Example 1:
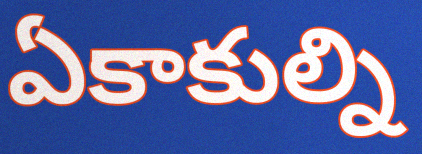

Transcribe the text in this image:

ఏకాకుల్ని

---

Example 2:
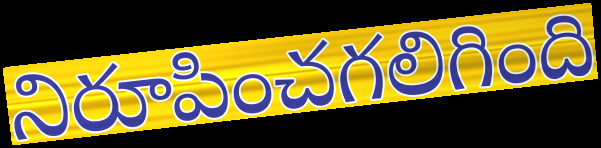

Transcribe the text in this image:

నిరూపించగలిగింది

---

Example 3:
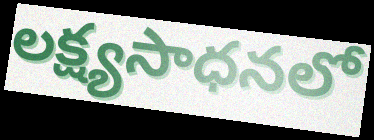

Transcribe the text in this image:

లక్ష్యసాధనలో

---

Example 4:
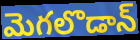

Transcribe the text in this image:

మెగలొడాన్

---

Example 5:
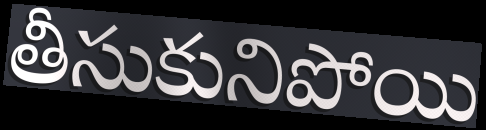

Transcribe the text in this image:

తీసుకునిపోయి